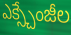
ఎక్స్చేంజీల